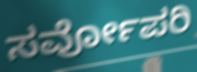
ಸರ್ವೋಪರಿ